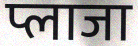
प्लाजा